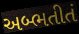
અબ્ભતીતં